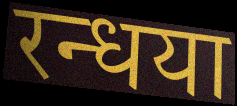
रन्धया